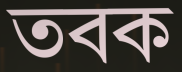
তবক